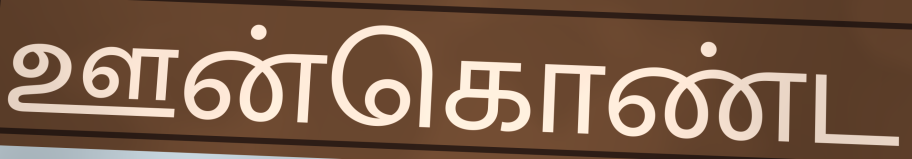
ஊன்கொண்ட